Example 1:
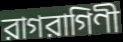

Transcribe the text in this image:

রাগরাগিণী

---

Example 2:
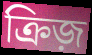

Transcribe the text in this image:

ক্রিজ়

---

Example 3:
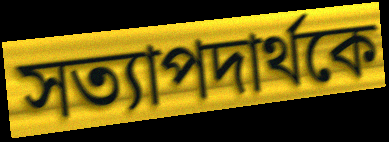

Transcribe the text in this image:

সত্যাপদার্থকে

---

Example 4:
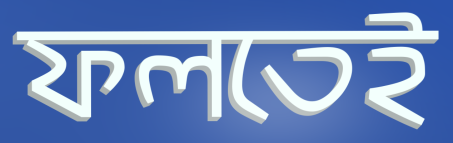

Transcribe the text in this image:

ফলতেই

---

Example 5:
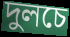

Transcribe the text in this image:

দুলচে